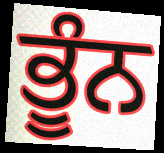
ਭੂੰਨ